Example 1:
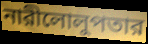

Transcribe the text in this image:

নারীলোলুপতার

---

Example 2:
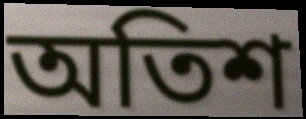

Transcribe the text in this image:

অতিশ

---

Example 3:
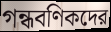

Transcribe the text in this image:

গন্ধবণিকদের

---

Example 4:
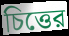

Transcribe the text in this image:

চিত্তের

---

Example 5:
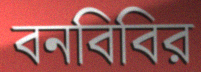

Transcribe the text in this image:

বনবিবির